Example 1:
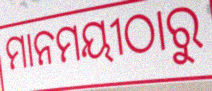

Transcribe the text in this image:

ମାନମୟୀଠାରୁ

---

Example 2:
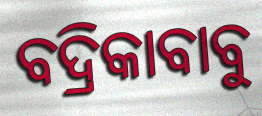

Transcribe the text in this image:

ବଦ୍ରିକାବାବୁ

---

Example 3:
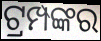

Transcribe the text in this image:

ଟ୍ରମ୍ପଙ୍କର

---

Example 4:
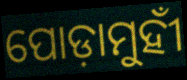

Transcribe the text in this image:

ପୋଡ଼ାମୁହୀଁ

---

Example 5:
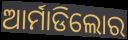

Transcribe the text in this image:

ଆର୍ମାଡିଲୋର